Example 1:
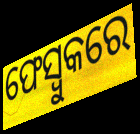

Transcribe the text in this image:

ଫେସ୍ବୁକରେ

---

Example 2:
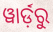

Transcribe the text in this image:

ୱାର୍ଡ଼ରୁ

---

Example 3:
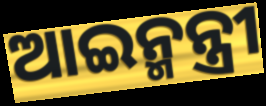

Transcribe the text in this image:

ଆଇନ୍ମନ୍ତ୍ରୀ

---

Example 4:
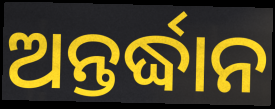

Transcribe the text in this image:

ଅନ୍ତର୍ଦ୍ଧାନ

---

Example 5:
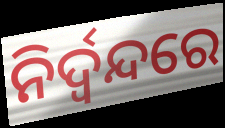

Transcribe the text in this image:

ନିର୍ଦ୍ୱନ୍ଦରେ